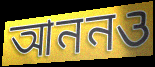
আননও